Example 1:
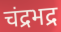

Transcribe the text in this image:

चंद्रभद्र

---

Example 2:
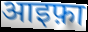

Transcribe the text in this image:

आइफ़ा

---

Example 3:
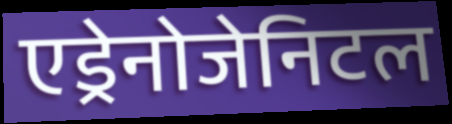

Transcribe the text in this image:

एड्रेनोजेनिटल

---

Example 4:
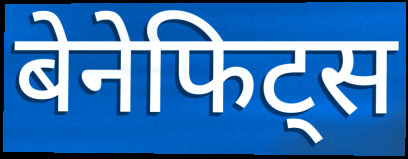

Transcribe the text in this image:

बेनेफिट्स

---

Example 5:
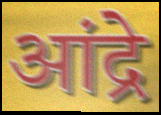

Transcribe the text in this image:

आंद्रे